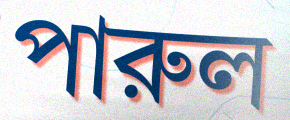
পারুল